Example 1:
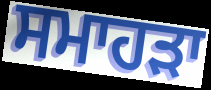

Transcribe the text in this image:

ਸਮਾਹੜਾ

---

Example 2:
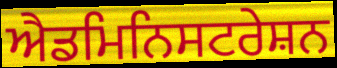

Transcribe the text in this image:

ਐਡਮਿਨਿਸਟਰੇਸ਼ਨ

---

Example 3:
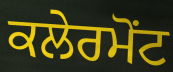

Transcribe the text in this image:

ਕਲੇਰਮੋਂਟ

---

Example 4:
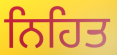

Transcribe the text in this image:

ਨਿਹਿਤ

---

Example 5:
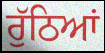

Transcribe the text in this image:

ਰੁੱਠਿਆਂ